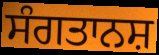
ਸੰਗਤਾਨਸ਼